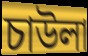
চাউলা